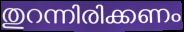
തുറന്നിരിക്കണം